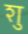
शु